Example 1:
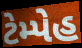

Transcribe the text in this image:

ટેમ્પેહ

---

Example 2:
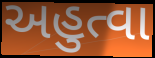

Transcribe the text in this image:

અહુત્વા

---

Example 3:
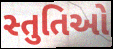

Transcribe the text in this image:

સ્તુતિઓ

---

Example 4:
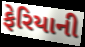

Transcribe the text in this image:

ફેરિયાની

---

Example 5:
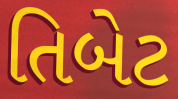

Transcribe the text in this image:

તિબેટ